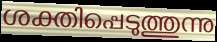
ശക്തിപ്പെടുത്തുന്നു